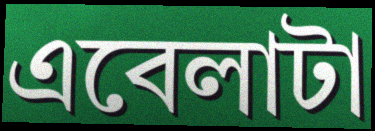
এবেলাটা